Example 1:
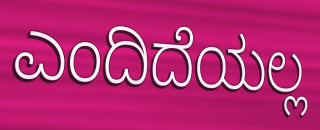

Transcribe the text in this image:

ಎಂದಿದೆಯಲ್ಲ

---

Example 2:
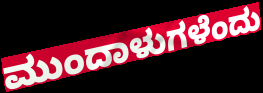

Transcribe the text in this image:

ಮುಂದಾಳುಗಳೆಂದು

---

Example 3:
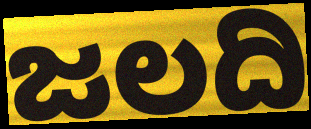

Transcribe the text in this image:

ಜಲದಿ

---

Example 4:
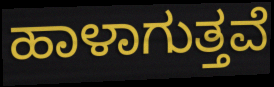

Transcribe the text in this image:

ಹಾಳಾಗುತ್ತವೆ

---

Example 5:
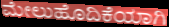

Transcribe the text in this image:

ಮೇಲುಹೊದಿಕೆಯಾಗಿ